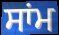
ਸਾਂਮ